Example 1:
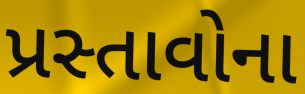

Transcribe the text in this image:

પ્રસ્તાવોના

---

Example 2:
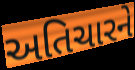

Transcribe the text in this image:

અતિચારને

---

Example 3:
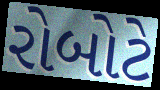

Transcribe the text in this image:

રોબોટે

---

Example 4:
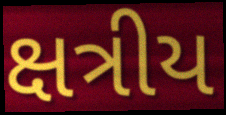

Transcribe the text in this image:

ક્ષત્રીય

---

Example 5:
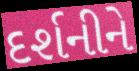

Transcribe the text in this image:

દર્શનીને